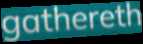
gathereth